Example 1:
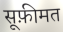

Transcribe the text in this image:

सूफ़ीमत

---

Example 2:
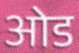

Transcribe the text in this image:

ओड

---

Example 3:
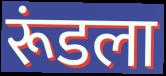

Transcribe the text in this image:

रूंडला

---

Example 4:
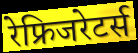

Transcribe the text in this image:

रेफ्रिजरेटर्स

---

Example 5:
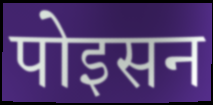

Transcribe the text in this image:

पोइसन